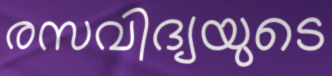
രസവിദ്യയുടെ